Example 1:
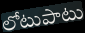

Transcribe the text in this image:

లోటుపాటు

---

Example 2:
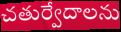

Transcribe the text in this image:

చతుర్వేదాలను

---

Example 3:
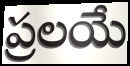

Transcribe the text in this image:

ప్రలయే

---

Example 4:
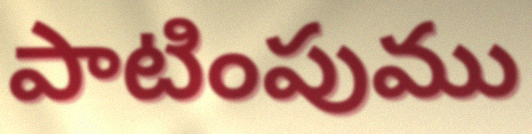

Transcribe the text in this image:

పాటింపుము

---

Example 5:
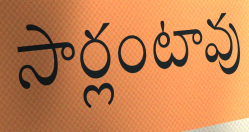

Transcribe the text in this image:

సార్లంటావు